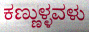
ಕಣ್ಣುಳ್ಳವಳು